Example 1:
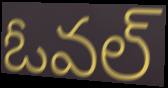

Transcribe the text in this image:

ఓవల్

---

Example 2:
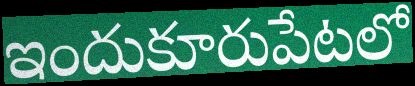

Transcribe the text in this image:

ఇందుకూరుపేటలో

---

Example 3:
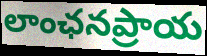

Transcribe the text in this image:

లాంఛనప్రాయ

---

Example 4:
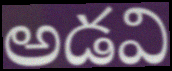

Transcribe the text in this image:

అడవి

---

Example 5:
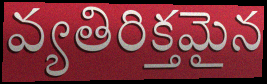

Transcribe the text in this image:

వ్యతిరిక్తమైన